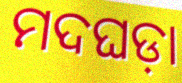
ମଦଘଡ଼ା